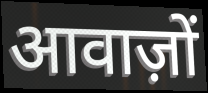
आवाज़ों